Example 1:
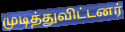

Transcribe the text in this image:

முடித்துவிட்டனர்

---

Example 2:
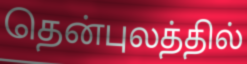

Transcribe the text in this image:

தென்புலத்தில்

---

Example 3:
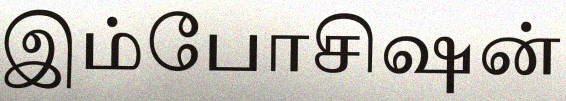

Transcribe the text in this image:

இம்போசிஷன்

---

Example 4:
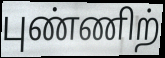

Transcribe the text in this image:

புண்ணிற்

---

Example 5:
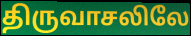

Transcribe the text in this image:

திருவாசலிலே